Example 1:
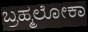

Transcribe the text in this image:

ಬ್ರಹ್ಮಲೋಕಾ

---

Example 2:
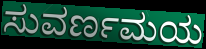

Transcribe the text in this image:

ಸುವರ್ಣಮಯ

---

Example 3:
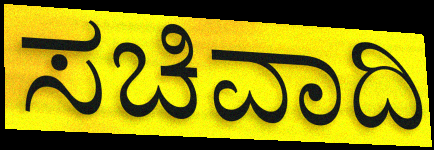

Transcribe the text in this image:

ಸಚಿವಾದಿ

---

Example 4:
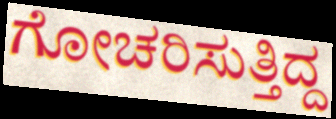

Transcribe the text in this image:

ಗೋಚರಿಸುತ್ತಿದ್ದ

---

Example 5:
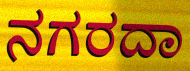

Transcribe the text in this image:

ನಗರದಾ